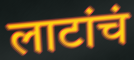
लाटांचं